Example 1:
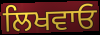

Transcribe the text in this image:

ਲਿਖਵਾਓ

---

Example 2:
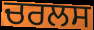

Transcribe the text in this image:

ਚਰਲਸ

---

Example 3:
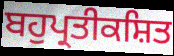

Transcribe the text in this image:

ਬਹੁਪ੍ਰਤੀਕਸ਼ਿਤ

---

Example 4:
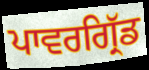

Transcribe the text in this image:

ਪਾਵਰਗ੍ਰਿੱਡ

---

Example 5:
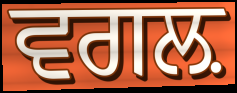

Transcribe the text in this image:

ਵਗਲ਼